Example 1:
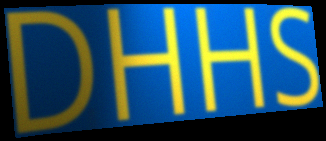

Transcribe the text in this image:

DHHS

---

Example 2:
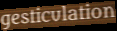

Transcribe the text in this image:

gesticulation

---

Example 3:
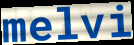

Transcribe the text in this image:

melvi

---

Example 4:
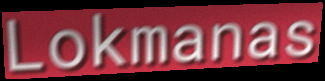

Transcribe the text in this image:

Lokmanas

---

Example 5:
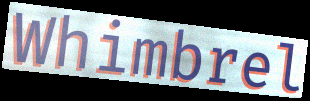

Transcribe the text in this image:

Whimbrel